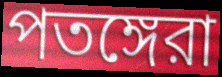
পতঙ্গেরা